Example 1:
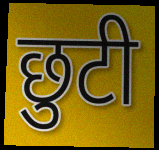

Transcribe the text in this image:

छुटी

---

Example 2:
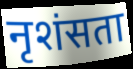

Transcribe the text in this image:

नृशंसता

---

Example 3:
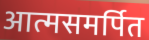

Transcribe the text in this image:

आत्मसमर्पित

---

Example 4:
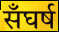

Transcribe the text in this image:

सँघर्ष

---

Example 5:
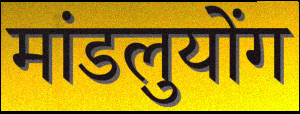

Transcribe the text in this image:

मांडलुयोंग